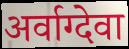
अर्वाग्देवा